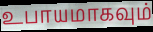
உபாயமாகவும்